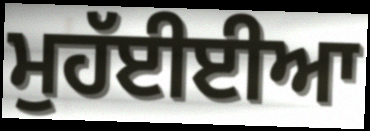
ਮੁਹੱਈਈਆ